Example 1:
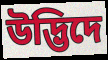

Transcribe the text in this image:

উদ্ভিদে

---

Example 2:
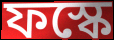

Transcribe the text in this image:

ফস্কে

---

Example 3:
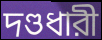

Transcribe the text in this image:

দণ্ডধারী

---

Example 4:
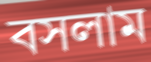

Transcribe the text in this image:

বসলাম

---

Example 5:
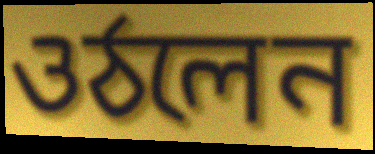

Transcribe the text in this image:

ওঠলেন